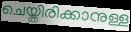
ചെയ്തിരിക്കാനുള്ള